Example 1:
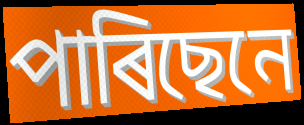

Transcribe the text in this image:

পাৰিছেনে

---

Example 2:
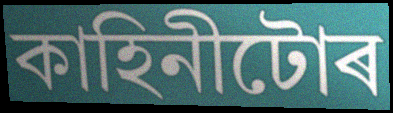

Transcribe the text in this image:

কাহিনীটোৰ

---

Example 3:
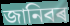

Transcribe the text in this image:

জানিবৰ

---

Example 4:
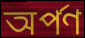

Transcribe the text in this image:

অৰ্পণ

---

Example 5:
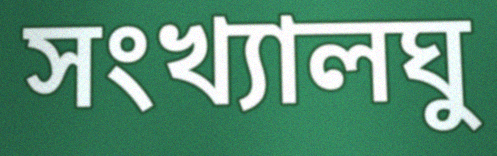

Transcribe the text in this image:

সংখ্যালঘু